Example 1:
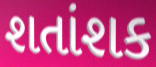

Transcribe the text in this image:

શતાંશક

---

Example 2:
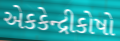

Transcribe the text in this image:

એકકેન્દ્રીકોષો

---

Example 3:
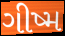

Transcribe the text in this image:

ગીષ્મ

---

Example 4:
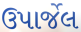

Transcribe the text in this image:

ઉપાર્જેલ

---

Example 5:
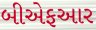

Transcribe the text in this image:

બીએફઆર